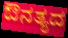
ಔನತ್ಯದ